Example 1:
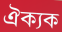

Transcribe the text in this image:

ঐক্যক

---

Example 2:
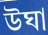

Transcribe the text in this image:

উঘা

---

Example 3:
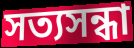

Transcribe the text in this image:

সত্যসন্ধা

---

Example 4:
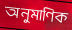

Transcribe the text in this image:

অনুমাণিক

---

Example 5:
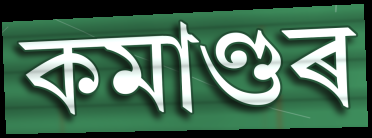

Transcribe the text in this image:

কমাণ্ডৰ